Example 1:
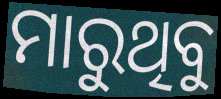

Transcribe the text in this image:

ମାରୁଥିବୁ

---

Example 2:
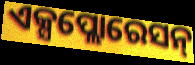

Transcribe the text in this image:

ଏକ୍ସପ୍ଲୋରେସନ୍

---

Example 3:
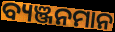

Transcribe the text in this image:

ବ୍ୟଞ୍ଜନମାନ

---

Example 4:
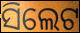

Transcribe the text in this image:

ସିଲେଟ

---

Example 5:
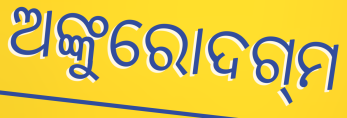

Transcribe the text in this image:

ଅଙ୍କୁରୋଦଗ୍‌ମ